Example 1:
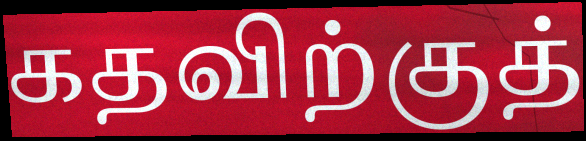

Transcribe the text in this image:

கதவிற்குத்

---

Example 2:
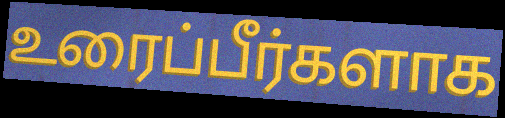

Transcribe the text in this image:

உரைப்பீர்களாக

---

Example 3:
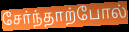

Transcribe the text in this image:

சேர்ந்தாற்போல்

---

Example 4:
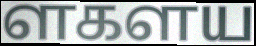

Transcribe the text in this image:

ளகளய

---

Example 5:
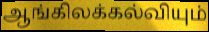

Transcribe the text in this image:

ஆங்கிலக்கல்வியும்